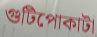
গুটিপোকাটা